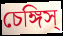
চেঙ্গিস্